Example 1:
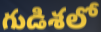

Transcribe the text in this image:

గుడిశలో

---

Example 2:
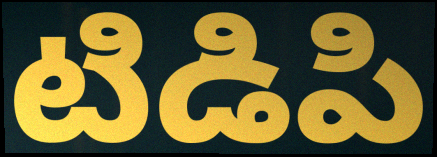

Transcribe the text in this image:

టిడిపి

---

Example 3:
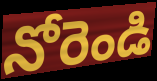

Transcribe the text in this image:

నోరెండి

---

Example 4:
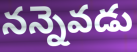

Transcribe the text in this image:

నన్నెవడు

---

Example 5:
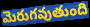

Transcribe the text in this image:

మెరుగవుతుంది